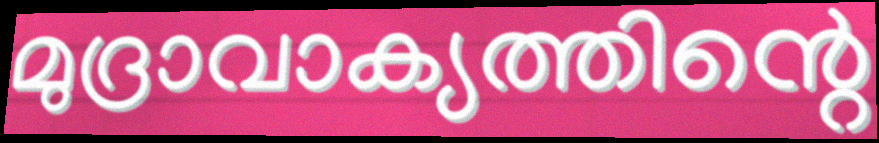
മുദ്രാവാക്യത്തിന്റെ